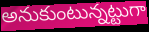
అనుకుంటున్నట్టుగా